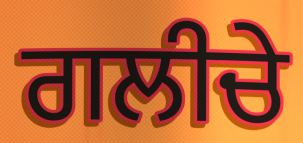
ਗਲੀਚੇ